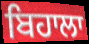
ਬਿਹਾਲਾ